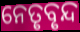
ନେତୃବୃନ୍ଦ